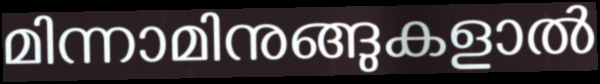
മിന്നാമിനുങ്ങുകളാൽ